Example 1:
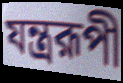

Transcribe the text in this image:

যন্ত্ররূপী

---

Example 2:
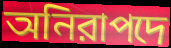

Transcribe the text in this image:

অনিরাপদে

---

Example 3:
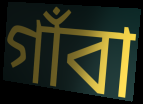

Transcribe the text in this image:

গাঁবা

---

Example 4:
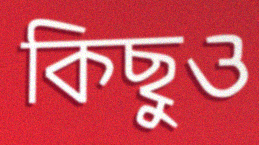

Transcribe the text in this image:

কিছুও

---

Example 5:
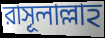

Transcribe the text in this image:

রাসূলাল্লাহ